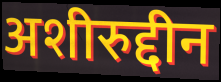
अशीरुद्दीन